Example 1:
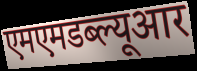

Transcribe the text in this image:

एमएमडब्ल्यूआर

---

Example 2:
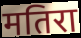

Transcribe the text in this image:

मतिरा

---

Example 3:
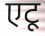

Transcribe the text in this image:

एटू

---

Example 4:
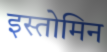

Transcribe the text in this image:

इस्तोमिन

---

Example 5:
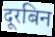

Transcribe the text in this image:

दूरबिन